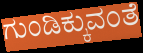
ಗುಂಡಿಕ್ಕುವಂತೆ